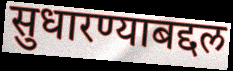
सुधारण्याबद्दल